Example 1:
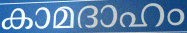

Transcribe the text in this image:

കാമദാഹം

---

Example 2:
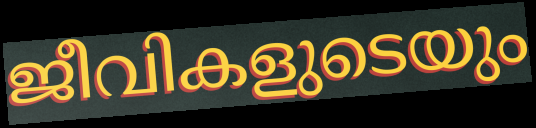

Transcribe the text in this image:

ജീവികളുടെയും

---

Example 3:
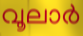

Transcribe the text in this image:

വൂലാർ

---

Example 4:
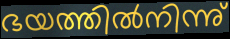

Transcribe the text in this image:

ഭയത്തിൽനിന്നു്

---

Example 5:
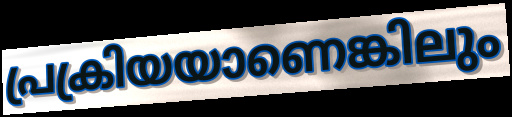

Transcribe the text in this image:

പ്രക്രിയയാണെങ്കിലും